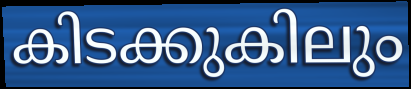
കിടക്കുകിലും